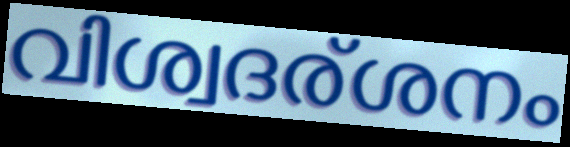
വിശ്വദര്ശനം